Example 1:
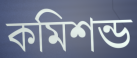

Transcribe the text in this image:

কমিশন্ড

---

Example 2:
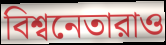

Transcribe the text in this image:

বিশ্বনেতারাও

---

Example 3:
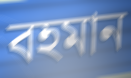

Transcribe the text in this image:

বহমান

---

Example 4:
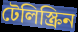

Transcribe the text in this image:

টেলিস্ক্রিন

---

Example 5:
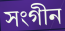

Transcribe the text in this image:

সংগীন